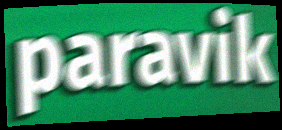
paravik